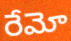
రేమో